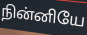
நின்னியே